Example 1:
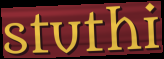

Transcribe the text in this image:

stuthi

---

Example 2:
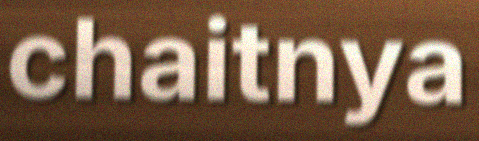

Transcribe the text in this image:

chaitnya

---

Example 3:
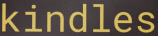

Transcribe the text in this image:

kindles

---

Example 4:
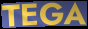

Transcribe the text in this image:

TEGA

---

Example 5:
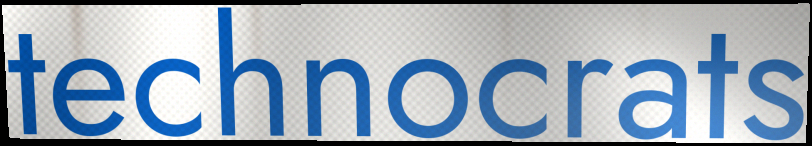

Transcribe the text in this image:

technocrats